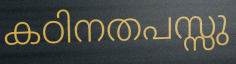
കഠിനതപസ്സു